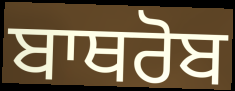
ਬਾਥਰੋਬ